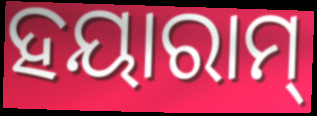
ହୟାରାମ୍